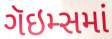
ગૅઇમ્સમાં